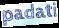
padati